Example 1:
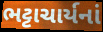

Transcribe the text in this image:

ભટ્ટાચાર્યનાં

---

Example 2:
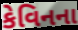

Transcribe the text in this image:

કેવિનના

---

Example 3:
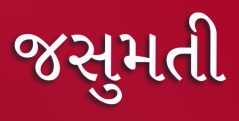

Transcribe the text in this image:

જસુમતી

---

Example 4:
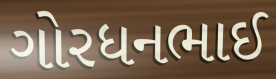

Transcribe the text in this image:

ગોરધનભાઈ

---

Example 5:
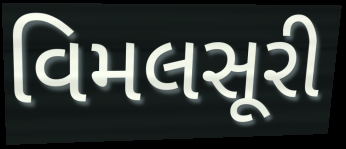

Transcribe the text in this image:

વિમલસૂરી